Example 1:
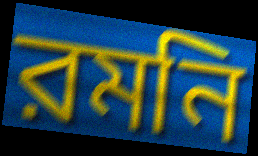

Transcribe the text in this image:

রমনি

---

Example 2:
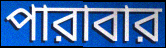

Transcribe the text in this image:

পারাবার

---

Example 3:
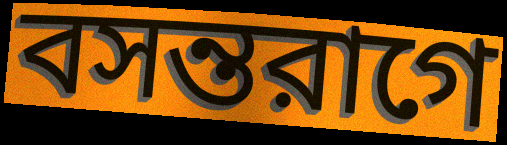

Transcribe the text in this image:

বসন্তরাগে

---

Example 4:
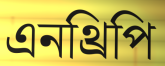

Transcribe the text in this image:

এনথ্রিপি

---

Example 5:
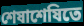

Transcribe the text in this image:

শেষাশেষিতে